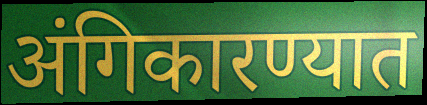
अंगिकारण्यात